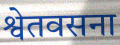
श्वेतवसना